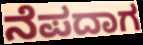
ನೆಪದಾಗ